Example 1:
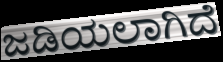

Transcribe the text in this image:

ಜಡಿಯಲಾಗಿದೆ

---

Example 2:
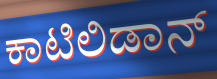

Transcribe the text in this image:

ಕಾಟಿಲಿಡಾನ್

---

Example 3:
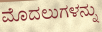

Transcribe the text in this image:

ಮೊದಲುಗಳನ್ನು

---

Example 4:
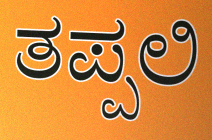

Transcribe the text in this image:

ತಪ್ಪಲಿ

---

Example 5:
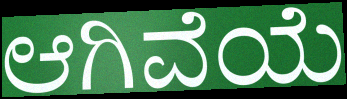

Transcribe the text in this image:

ಆಗಿವೆಯೆ